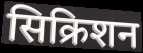
सिक्रिशन